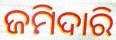
ଜମିଦାରି